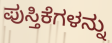
ಪುಸ್ತಿಕೆಗಳನ್ನು